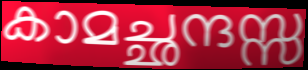
കാമച്ഛന്ദസ്സ